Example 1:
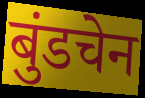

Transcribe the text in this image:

बुंडचेन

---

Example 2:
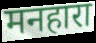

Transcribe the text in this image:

मनहारा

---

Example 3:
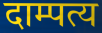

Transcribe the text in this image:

दाम्पत्य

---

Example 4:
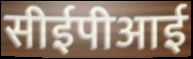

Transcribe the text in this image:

सीईपीआई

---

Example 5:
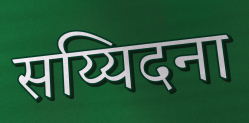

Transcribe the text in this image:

सय्यिदना